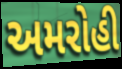
અમરોહી